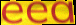
eea